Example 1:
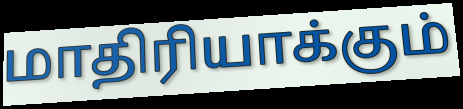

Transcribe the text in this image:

மாதிரியாக்கும்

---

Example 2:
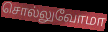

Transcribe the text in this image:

சொல்லுவோமா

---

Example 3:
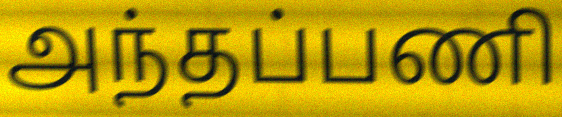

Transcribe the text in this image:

அந்தப்பணி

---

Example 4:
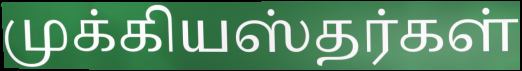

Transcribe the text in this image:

முக்கியஸ்தர்கள்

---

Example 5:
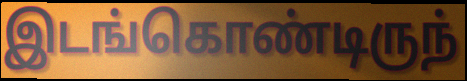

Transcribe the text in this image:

இடங்கொண்டிருந்